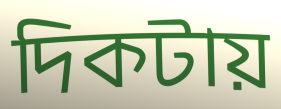
দিকটায়